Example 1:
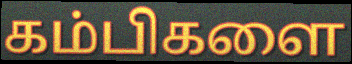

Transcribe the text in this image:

கம்பிகளை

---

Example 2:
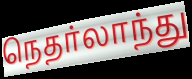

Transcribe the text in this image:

நெதர்லாந்து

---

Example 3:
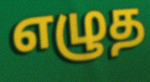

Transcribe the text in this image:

எழுத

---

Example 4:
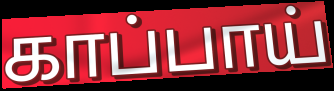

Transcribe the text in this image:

காப்பாய்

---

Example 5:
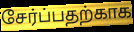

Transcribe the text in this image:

சேர்ப்பதற்காக